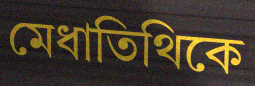
মেধাতিথিকে